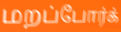
மறப்போர்க்